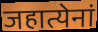
जहात्येनां